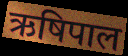
ऋषिपाल